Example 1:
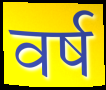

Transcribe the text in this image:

वर्ष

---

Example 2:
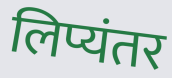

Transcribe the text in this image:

लिप्यंतर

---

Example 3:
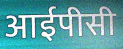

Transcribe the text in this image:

आईपीसी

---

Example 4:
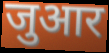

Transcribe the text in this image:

जुआर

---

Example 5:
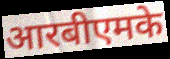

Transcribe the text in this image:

आरबीएमके